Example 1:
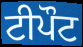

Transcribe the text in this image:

ਟੀਪੌਟ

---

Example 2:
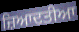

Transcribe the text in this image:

ਜ਼ਿਆਦਤੀਆ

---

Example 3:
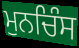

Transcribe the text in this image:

ਮੁਨਚਿੰਸ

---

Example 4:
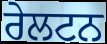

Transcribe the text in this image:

ਰੇਲਟਨ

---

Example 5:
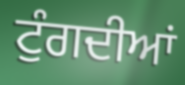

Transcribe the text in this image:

ਟੁੰਗਦੀਆਂ